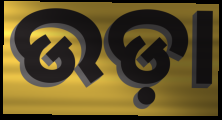
ଉଡ଼ା